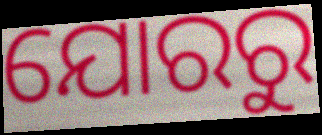
ଯୋରରୁ